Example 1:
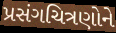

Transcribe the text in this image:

પ્રસંગચિત્રણોને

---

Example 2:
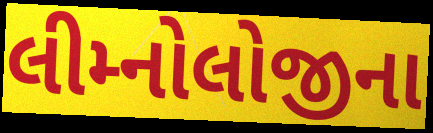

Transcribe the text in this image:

લીમ્નોલોજીના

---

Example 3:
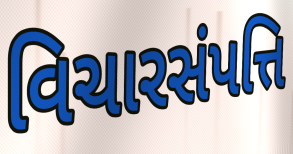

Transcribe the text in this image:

વિચારસંપત્તિ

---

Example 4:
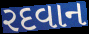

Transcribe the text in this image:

રદવાન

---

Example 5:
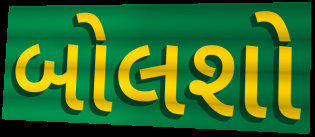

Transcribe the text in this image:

બોલશો